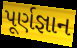
પૂર્ણજ્ઞાન